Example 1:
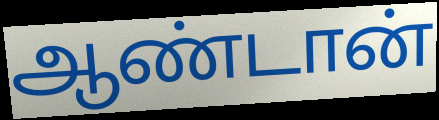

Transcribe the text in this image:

ஆண்டான்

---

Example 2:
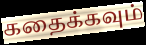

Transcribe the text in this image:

கதைக்கவும்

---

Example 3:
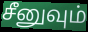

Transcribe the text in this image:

சீனுவும்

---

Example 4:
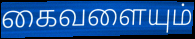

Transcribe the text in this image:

கைவளையும்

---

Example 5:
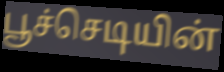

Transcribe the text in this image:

பூச்செடியின்